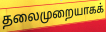
தலைமுறையாகக்